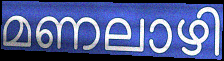
മണലാഴി